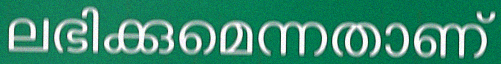
ലഭിക്കുമെന്നതാണ്